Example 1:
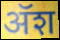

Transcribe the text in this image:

ॲश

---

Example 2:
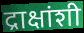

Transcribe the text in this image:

द्राक्षांशी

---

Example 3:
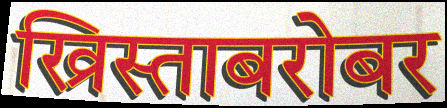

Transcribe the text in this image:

ख्रिस्ताबरोबर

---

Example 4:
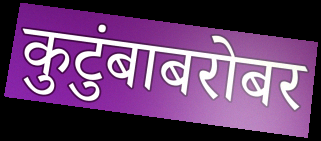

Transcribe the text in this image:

कुटुंबाबरोबर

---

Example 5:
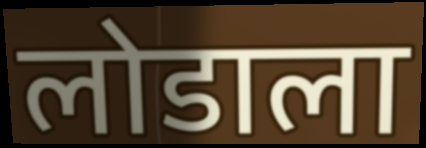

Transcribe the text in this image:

लोडाला